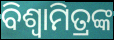
ବିଶ୍ବାମିତ୍ରଙ୍କ